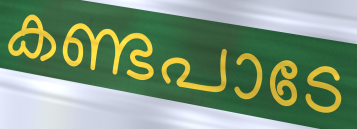
കണ്ടപാടേ